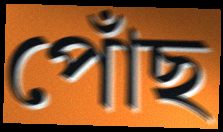
পোঁছ